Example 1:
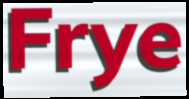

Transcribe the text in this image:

Frye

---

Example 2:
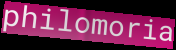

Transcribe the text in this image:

philomoria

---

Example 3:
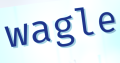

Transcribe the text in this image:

wagle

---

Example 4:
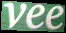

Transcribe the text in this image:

vee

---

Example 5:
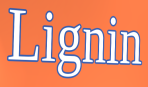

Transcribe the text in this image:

Lignin